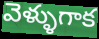
వెళ్ళుగాక